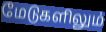
மேடுகளிலும்